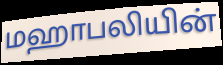
மஹாபலியின்